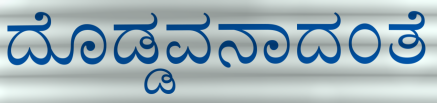
ದೊಡ್ಡವನಾದಂತೆ